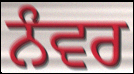
ਨੰਵਰ